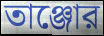
তাঞ্জোর